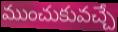
ముంచుకువచ్చే